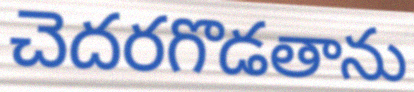
చెదరగొడతాను